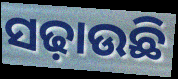
ସଢ଼ାଉଛି